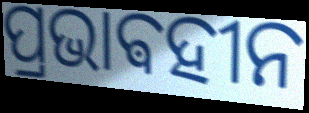
ପ୍ରଭାଵହୀନ